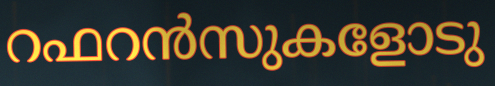
റഫറൻസുകളോടു